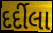
દર્દીલા